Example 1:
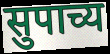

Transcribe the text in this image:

सुपाच्य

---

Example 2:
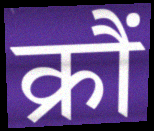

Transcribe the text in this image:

क्रौं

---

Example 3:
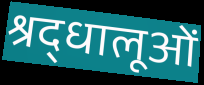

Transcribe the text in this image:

श्रद्धालूओं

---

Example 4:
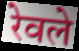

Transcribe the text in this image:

रेवले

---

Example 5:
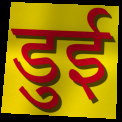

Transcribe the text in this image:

डुई